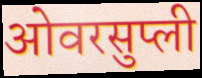
ओवरसुप्ली